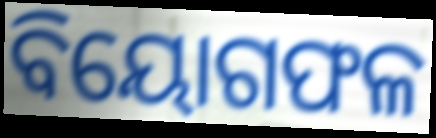
ବିୟୋଗଫଳ